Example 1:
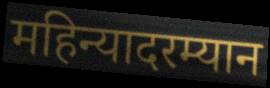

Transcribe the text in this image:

महिन्यादरम्यान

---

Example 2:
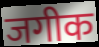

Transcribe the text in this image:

जगीक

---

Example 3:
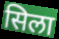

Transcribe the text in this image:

सिला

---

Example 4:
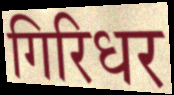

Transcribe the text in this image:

गिरिधर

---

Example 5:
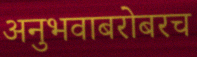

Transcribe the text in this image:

अनुभवाबरोबरच